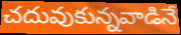
చదువుకున్నవాడినే